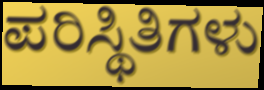
ಪರಿಸ್ಥಿತಿಗಳು